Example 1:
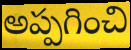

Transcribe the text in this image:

అప్పగించి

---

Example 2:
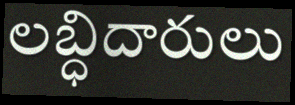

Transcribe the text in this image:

లబ్ధిదారులు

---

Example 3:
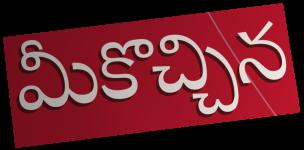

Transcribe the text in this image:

మీకొచ్చిన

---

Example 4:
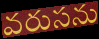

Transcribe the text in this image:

వరుసను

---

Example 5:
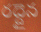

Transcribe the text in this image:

రద్దైన